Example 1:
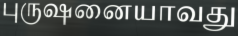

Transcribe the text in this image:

புருஷனையாவது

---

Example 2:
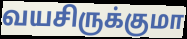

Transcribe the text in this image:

வயசிருக்குமா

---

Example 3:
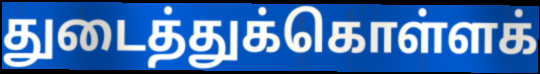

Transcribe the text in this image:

துடைத்துக்கொள்ளக்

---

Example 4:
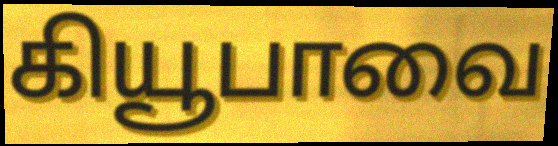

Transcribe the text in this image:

கியூபாவை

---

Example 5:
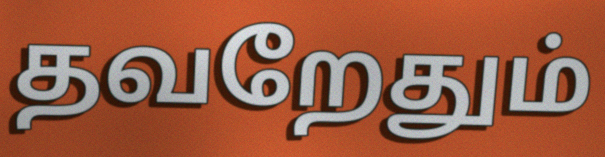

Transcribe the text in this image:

தவறேதும்